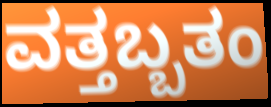
ವತ್ತಬ್ಬತಂ